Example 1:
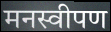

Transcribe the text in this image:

मनस्वीपण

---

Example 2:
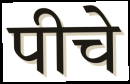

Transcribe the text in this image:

पीचे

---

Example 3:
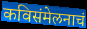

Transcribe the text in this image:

कविसंमेलनाचं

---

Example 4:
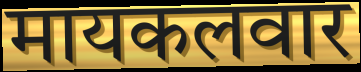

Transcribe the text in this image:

मायकलवार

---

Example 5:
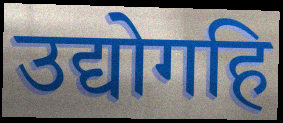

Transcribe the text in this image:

उद्योगहि